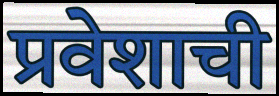
प्रवेशाची